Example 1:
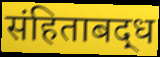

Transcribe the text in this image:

संहिताबद्ध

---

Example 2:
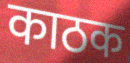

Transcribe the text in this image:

काठक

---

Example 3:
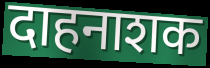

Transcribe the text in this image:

दाहनाशक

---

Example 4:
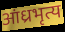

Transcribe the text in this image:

आंध्रभृत्य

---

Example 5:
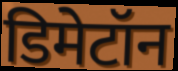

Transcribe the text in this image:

डिमेटॉन